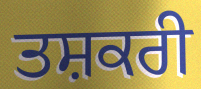
ਤਸ਼ਕਰੀ